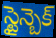
స్టైన్బెక్